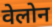
वेलोन